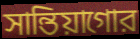
সান্তিয়াগোর